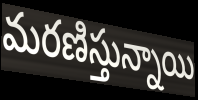
మరణిస్తున్నాయి